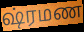
ஷ்ரமண